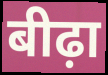
बीढ़ा